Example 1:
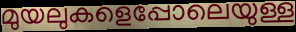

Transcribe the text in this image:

മുയലുകളെപ്പോലെയുള്ള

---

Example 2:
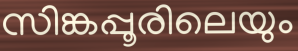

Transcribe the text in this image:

സിങ്കപ്പൂരിലെയും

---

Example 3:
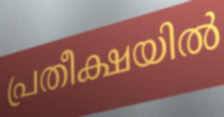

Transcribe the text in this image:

പ്രതീക്ഷയിൽ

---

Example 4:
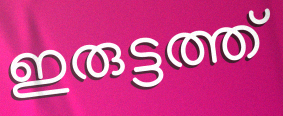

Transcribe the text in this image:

ഇരുട്ടത്ത്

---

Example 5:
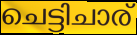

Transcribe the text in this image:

ചെട്ടിചാര്